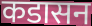
कडासन